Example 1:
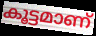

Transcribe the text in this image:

കൂട്ടമാണ്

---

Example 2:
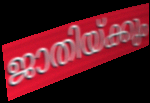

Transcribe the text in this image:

ജാതിയ്ക്കും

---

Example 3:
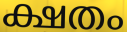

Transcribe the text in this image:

ക്ഷതം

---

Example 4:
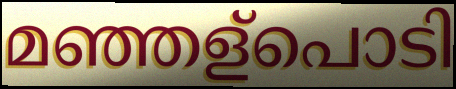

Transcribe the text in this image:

മഞ്ഞള്പൊടി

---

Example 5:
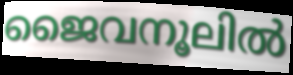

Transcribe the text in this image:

ജൈവനൂലിൽ